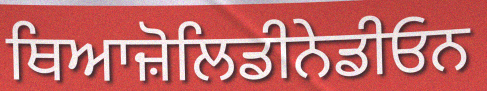
ਥਿਆਜ਼ੋਲਿਡੀਨੇਡੀਓਨ